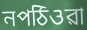
নপঠিওৱা